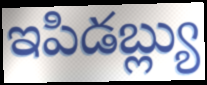
ఇపిడబ్ల్యు